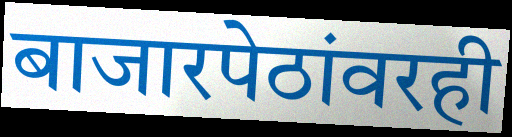
बाजारपेठांवरही